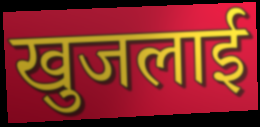
खुजलाई